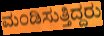
ಮಂಡಿಸುತ್ತಿದ್ದರು